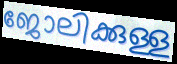
ജോലിക്കുള്ള